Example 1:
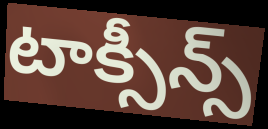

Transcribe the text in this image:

టాక్సీన్స్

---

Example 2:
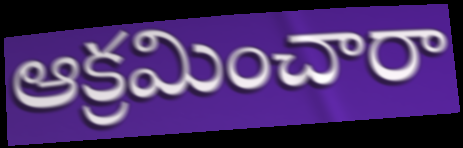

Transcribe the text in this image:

ఆక్రమించారా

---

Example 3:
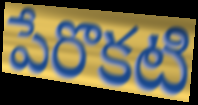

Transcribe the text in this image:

పేరొకటి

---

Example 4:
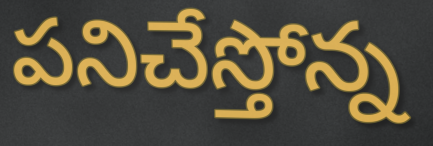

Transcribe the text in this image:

పనిచేస్తోన్న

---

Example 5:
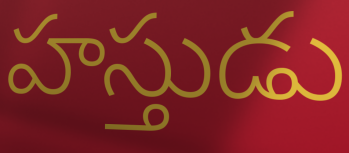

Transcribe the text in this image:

హస్తుడు